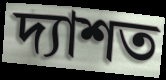
দ্যাশত